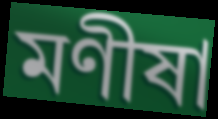
মণীষা